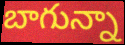
బాగున్నా